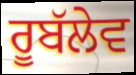
ਰੂਬੱਲੇਵ